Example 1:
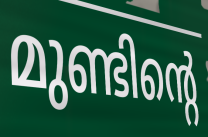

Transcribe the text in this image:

മുണ്ടിന്റെ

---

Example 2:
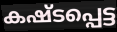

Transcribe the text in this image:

കഷ്ടപ്പെട്ട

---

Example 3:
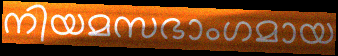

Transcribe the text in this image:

നിയമസഭാംഗമായ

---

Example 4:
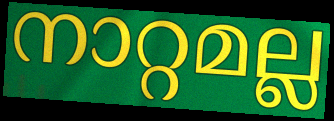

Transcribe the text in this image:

നാറ്റമല്ല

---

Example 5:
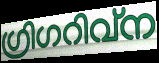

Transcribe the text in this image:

ഗ്രിഗറിവ്ന